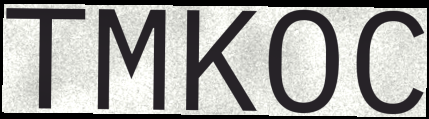
TMKOC